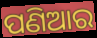
ପଣିଆର